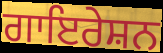
ਗਾਇਰੇਸ਼ਨ